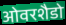
ओवरशैडो